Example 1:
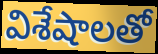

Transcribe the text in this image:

విశేషాలతో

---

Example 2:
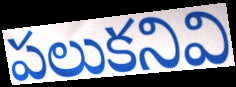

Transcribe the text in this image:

పలుకనివి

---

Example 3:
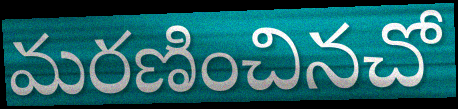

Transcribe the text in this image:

మరణించినచో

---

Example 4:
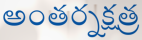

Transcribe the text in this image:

అంతర్నక్షత్ర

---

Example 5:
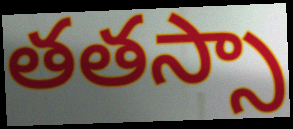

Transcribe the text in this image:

తతస్సా